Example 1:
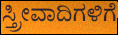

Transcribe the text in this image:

ಸ್ತ್ರೀವಾದಿಗಳಿಗೆ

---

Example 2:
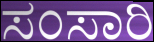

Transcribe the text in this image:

ಸಂಸಾರಿ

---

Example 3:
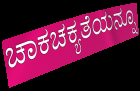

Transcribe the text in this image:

ಚಾಕಚಕ್ಯತೆಯನ್ನೂ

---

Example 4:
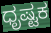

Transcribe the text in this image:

ಧೃಷ್ಟಕ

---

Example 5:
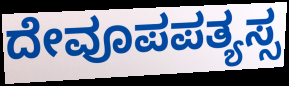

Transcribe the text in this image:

ದೇವೂಪಪತ್ಯಸ್ಸ